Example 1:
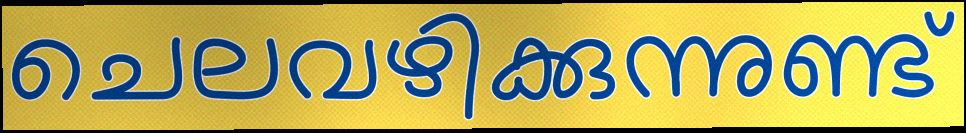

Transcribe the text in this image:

ചെലവഴിക്കുന്നുണ്ട്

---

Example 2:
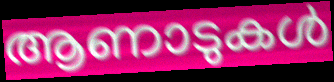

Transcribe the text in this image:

ആണാടുകൾ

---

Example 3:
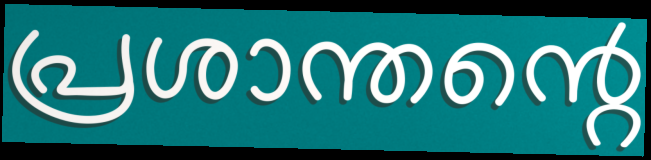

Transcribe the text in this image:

പ്രശാന്തന്റെ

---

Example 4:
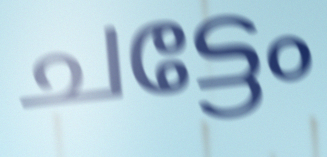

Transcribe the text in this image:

ചട്ടേം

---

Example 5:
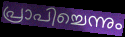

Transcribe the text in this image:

പ്രാപിച്ചെന്നും